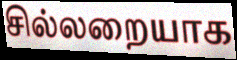
சில்லறையாக